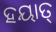
ହୟାତ୍